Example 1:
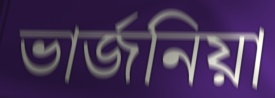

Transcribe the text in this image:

ভাৰ্জনিয়া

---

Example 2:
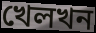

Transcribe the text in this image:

খেলখন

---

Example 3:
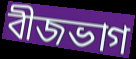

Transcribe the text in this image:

বীজভাগ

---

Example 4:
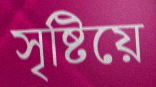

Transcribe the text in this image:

সৃষ্টিয়ে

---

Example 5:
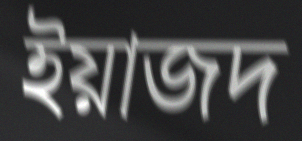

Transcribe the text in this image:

ইয়াজদ